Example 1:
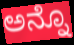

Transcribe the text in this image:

ಅನ್ನೊ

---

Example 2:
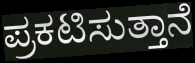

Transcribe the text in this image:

ಪ್ರಕಟಿಸುತ್ತಾನೆ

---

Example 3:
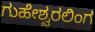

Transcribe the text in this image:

ಗುಹೇಶ್ವರಲಿಂಗ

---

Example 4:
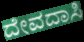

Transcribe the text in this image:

ದೇವದಾಸಿ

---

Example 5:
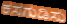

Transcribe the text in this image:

ಕಸಗುಡಿಸು